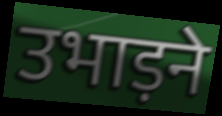
उभाड़ने